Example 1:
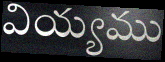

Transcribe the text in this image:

వియ్యము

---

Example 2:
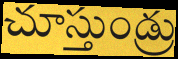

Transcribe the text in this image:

చూస్తుండ్రు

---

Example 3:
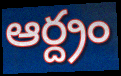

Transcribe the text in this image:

ఆర్ద్రం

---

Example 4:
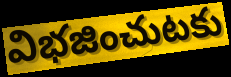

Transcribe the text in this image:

విభజించుటకు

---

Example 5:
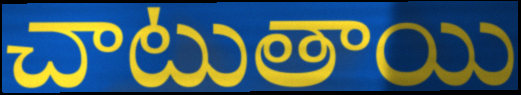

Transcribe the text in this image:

చాటుతాయి